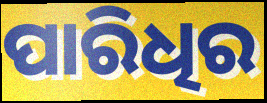
ପାରିଧିର